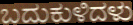
ಬದುಕುಳಿದಳು